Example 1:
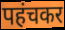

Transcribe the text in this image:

पहंचकर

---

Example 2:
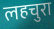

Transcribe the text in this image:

लहचुरा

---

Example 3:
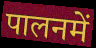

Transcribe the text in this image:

पालनमें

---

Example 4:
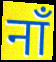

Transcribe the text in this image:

नाँ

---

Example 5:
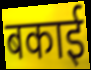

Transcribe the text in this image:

बकाई